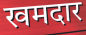
खमदार